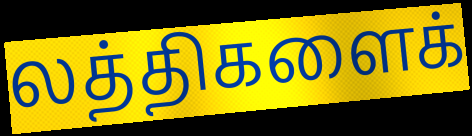
லத்திகளைக்